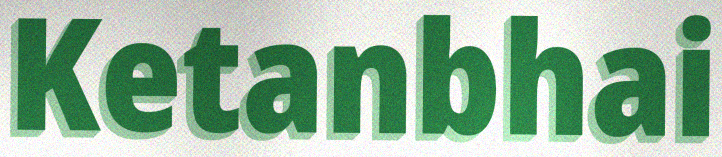
Ketanbhai